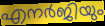
എനർജിയും